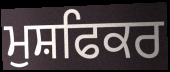
ਮੁਸ਼ਫਿਕਰ